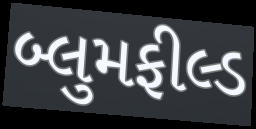
બ્લુમફીલ્ડ